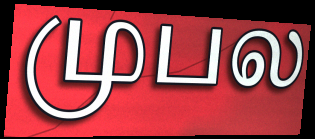
முபல